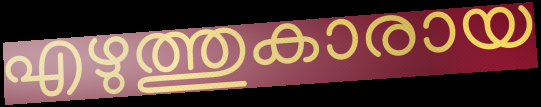
എഴുത്തുകാരായ